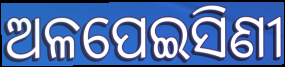
ଅଳପେଇସିଣୀ